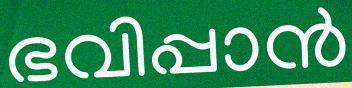
ഭവിപ്പാൻ